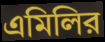
এমিলির